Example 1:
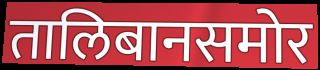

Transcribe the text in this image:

तालिबानसमोर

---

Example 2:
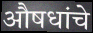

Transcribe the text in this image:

औषधांचे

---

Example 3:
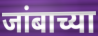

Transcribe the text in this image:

जांबाच्या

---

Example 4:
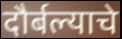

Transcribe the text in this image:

दौर्बल्याचे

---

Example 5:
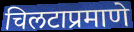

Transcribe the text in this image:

चिलटाप्रमाणे